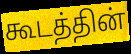
கூடத்தின்